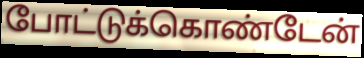
போட்டுக்கொண்டேன்